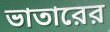
ভাতারের